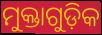
ମୁକ୍ତାଗୁଡ଼ିକ